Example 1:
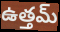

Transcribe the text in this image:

ఉత్తమ్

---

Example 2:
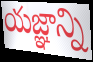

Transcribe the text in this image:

యజ్ఞాన్ని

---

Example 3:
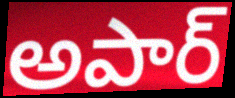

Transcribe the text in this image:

అపార్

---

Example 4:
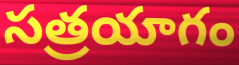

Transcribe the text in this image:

సత్రయాగం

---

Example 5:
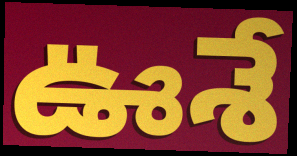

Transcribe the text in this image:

ఊశే